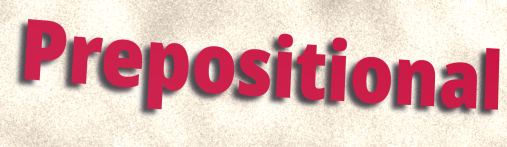
Prepositional